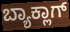
ಬ್ಯಾಕ್ಲಾಗ್